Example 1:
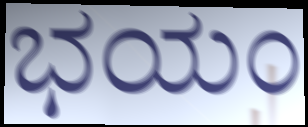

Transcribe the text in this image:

ಭಯಂ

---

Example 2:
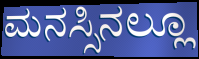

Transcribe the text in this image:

ಮನಸ್ಸಿನಲ್ಲೂ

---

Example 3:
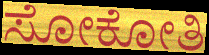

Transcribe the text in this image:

ಸೋಕೋತಿ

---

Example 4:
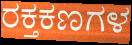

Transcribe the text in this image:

ರಕ್ತಕಣಗಳ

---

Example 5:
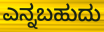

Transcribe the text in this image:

ಎನ್ನಬಹುದು